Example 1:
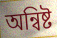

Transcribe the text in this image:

অন্বিষ্ট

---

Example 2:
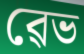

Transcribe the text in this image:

ৱেভ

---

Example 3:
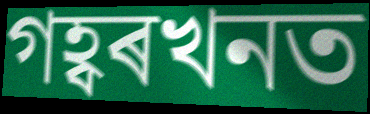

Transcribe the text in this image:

গহ্বৰখনত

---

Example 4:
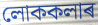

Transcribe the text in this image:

লোককলাৰ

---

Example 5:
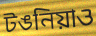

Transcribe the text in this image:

টঙনিয়াও